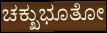
ಚಕ್ಖುಭೂತೋ